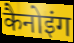
कैनोइंग